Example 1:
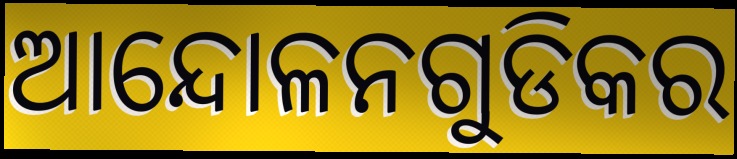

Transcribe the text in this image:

ଆନ୍ଦୋଳନଗୁଡିକର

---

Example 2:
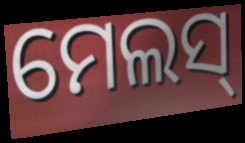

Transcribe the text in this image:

ମେଲସ୍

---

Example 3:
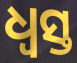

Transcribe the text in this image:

ଧ୍ବସ୍ତ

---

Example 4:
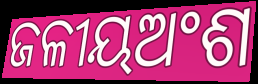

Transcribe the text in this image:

ଜଳୀୟଅଂଶ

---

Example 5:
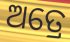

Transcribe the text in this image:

ଅତ୍ରେ